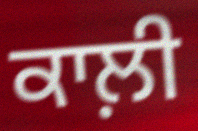
ਕਾਲ਼ੀ